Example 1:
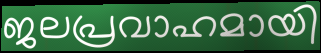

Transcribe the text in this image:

ജലപ്രവാഹമായി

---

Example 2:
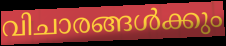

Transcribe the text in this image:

വിചാരങ്ങൾക്കും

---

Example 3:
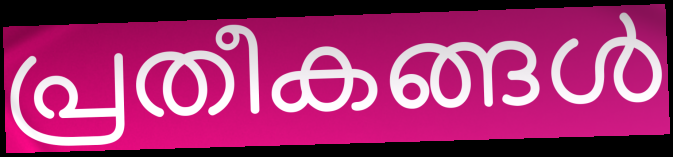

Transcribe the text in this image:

പ്രതീകങ്ങൾ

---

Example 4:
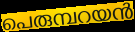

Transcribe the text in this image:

പെരുമ്പറയൻ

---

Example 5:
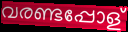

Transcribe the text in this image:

വരണ്ടപ്പോള്